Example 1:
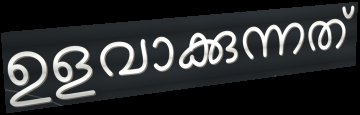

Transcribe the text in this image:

ഉളവാക്കുന്നത്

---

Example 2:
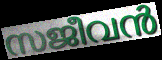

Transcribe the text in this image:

സജീവൻ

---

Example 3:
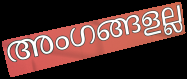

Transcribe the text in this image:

അംഗങ്ങളല്ല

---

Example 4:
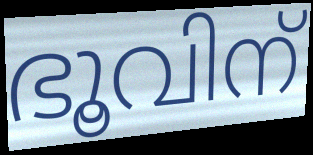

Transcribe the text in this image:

ഭൂവിന്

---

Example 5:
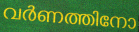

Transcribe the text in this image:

വർണത്തിനോ